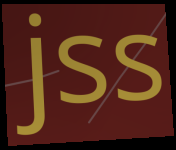
jss